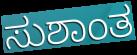
ಸುಶಾಂತ